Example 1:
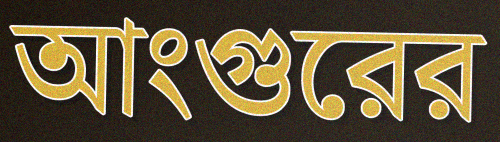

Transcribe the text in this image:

আংগুরের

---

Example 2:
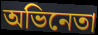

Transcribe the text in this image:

অভিনেতা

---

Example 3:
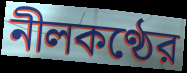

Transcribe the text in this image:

নীলকণ্ঠের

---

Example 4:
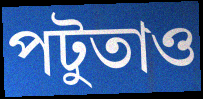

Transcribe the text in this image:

পটুতাও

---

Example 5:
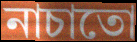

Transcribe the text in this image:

নাচাতো